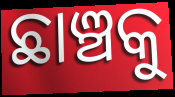
ଛାଞ୍ଚକୁ